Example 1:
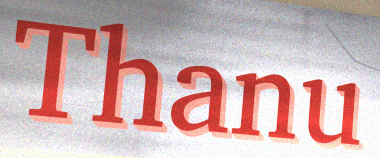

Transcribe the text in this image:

Thanu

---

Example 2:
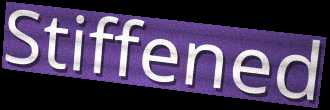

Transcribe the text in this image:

Stiffened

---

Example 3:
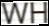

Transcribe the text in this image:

WH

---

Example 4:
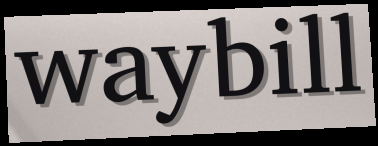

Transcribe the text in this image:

waybill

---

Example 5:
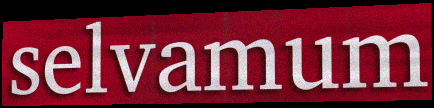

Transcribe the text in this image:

selvamum